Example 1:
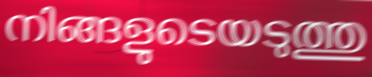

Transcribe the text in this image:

നിങ്ങളുടെയടുത്തു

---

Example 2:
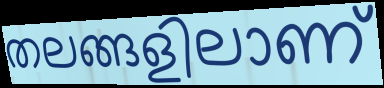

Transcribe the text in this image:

തലങ്ങളിലാണ്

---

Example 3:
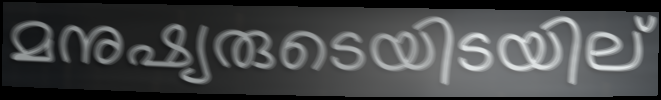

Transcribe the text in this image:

മനുഷ്യരുടെയിടയില്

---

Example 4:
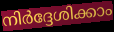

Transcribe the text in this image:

നിർദ്ദേശിക്കാം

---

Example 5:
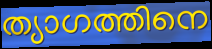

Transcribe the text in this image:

ത്യാഗത്തിനെ